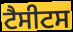
ਟੈਸੀਟਸ